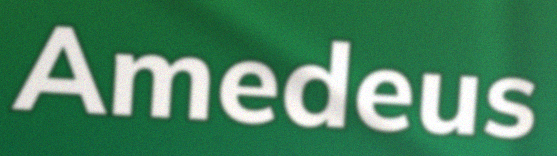
Amedeus